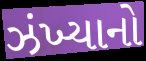
ઝંખ્યાનો